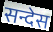
सन्देस